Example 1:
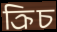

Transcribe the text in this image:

ক্রিচ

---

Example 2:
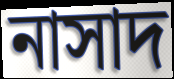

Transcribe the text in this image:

নাসাদ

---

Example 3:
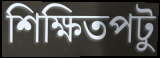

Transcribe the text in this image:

শিক্ষিতপটু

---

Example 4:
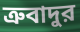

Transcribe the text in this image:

ত্রুবাদুর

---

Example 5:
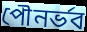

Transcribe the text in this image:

পৌনর্ভব